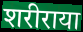
शरीराया